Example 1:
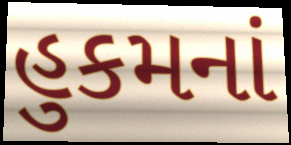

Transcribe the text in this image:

હુકમનાં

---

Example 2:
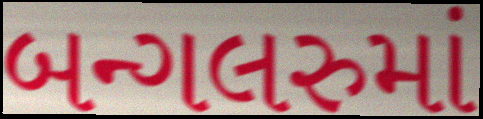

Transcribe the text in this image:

બન્ગલરુમાં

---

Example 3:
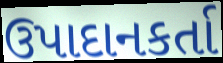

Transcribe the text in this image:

ઉપાદાનકર્તા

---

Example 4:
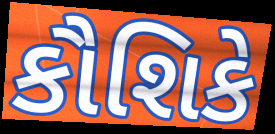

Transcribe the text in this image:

કૌશિકે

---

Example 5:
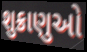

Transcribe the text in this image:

શુક્રાણુઓ